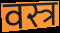
वस्त्र